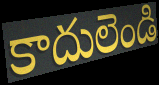
కాదులెండి